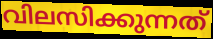
വിലസിക്കുന്നത്